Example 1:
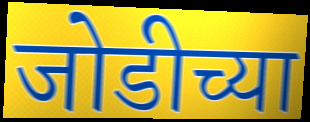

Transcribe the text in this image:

जोडीच्या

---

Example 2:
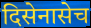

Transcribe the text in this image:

दिसेनासेच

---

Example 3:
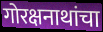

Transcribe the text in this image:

गोरक्षनाथांचा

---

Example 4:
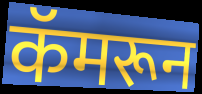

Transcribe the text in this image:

कॅमरून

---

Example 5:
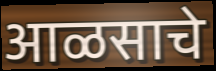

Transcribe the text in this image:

आळसाचे